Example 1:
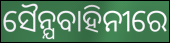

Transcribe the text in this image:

ସୈନ୍ଯବାହିନୀରେ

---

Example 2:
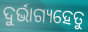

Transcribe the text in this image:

ଦୁର୍ଭାଗ୍ୟହେତୁ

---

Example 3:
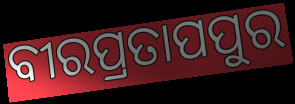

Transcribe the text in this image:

ବୀରପ୍ରତାପପୁର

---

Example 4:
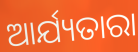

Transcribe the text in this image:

ଆର୍ଯ୍ୟତାରା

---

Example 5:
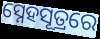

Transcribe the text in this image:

ସ୍ନେହସୂତ୍ରରେ